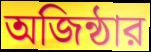
অজিন্ঠার